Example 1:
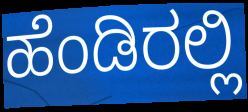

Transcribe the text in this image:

ಹೆಂಡಿರಲ್ಲಿ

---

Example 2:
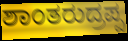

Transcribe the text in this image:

ಶಾಂತರುದ್ರಪ್ಪ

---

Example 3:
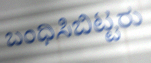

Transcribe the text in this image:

ಬಂಧಿಸಿಬಿಟ್ಟರು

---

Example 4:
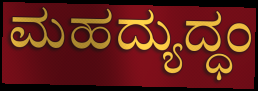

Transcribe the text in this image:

ಮಹದ್ಯುದ್ಧಂ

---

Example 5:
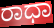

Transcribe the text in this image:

ರಾಧಾ